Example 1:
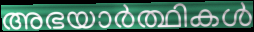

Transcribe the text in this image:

അഭയാർത്ഥികൾ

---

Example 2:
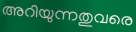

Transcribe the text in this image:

അറിയുന്നതുവരെ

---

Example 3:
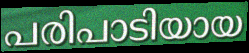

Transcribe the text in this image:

പരിപാടിയായ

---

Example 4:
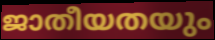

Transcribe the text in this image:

ജാതീയതയും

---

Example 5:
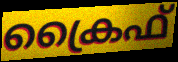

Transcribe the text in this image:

ക്രൈഫ്